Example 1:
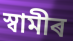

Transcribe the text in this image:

স্বামীৰ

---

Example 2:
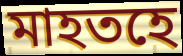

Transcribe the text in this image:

মাহতহে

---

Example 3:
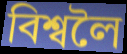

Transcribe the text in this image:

বিশ্বলৈ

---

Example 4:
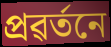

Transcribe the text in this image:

প্ৰৱৰ্তনে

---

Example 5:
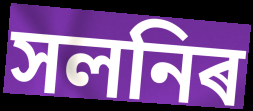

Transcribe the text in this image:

সলনিৰ